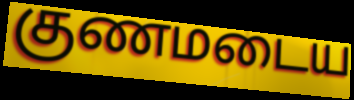
குணமடைய